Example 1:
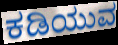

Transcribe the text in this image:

ಕಡಿಯುವ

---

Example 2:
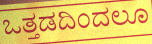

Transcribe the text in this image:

ಒತ್ತಡದಿಂದಲೂ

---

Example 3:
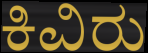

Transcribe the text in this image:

ಕಿವಿರು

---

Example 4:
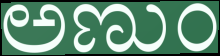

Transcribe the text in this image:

ಅಣುಂ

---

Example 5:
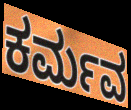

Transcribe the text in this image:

ಕರ್ಮವ